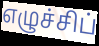
எழுச்சிப்